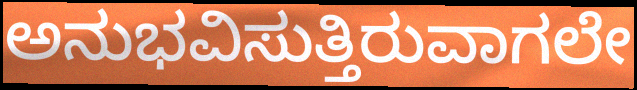
ಅನುಭವಿಸುತ್ತಿರುವಾಗಲೇ